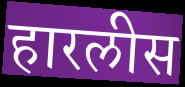
हारलीस